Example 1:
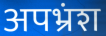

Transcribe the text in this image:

अपभ्रंश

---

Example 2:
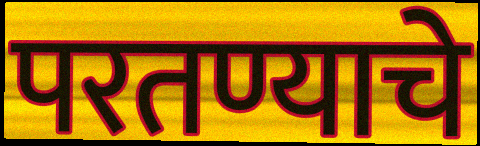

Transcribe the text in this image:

परतण्याचे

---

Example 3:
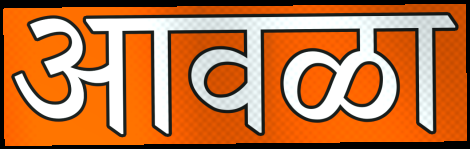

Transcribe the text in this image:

आवळा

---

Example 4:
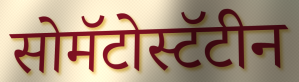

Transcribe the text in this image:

सोमॅटोस्टॅटीन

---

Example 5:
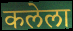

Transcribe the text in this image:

कलेला